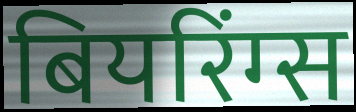
बियरिंग्स